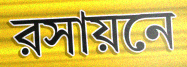
রসায়নে